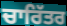
ਚਾਰਿੱਤਰ